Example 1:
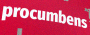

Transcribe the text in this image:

procumbens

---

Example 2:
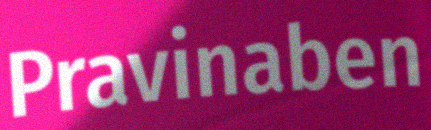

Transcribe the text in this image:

Pravinaben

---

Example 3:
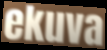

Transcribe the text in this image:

ekuva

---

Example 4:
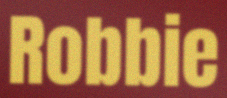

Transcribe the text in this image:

Robbie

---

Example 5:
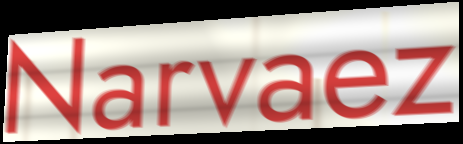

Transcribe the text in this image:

Narvaez